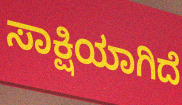
ಸಾಕ್ಷಿಯಾಗಿದೆ